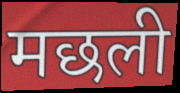
मछली